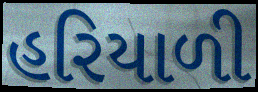
હરિયાળી